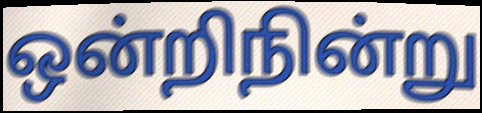
ஒன்றிநின்று